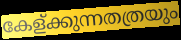
കേള്ക്കുന്നതത്രയും